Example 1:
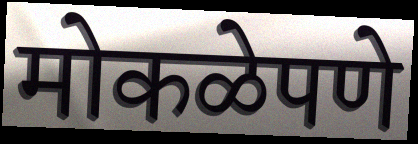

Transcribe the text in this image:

मोकळेपणे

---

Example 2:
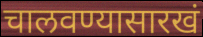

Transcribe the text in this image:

चालवण्यासारखं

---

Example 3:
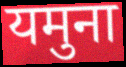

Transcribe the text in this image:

यमुना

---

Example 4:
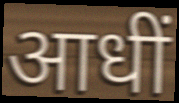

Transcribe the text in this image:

आधीं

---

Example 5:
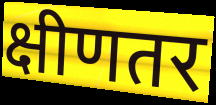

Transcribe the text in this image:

क्षीणतर